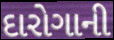
દારોગાની